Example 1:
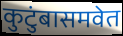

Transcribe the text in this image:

कुटुंबासमवेत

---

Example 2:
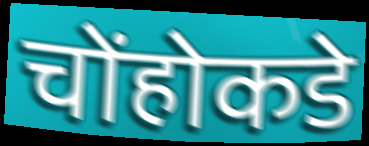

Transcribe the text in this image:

चोंहोकडे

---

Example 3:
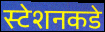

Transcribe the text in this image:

स्टेशनकडे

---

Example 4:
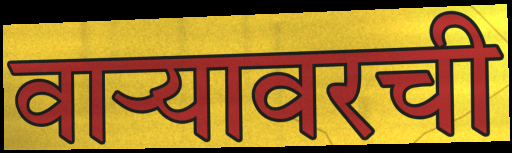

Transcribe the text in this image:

वार्‍यावरची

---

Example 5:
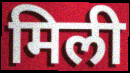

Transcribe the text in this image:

मिली